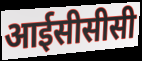
आईसीसीसी